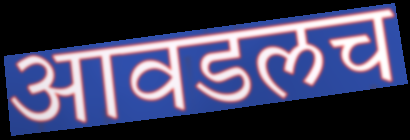
आवडलच